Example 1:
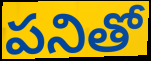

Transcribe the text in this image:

పనితో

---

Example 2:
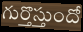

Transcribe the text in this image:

గుర్తొస్తుందో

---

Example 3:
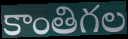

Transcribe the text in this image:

కాంతిగల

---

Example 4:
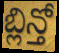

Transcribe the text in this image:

బ్లిన్తో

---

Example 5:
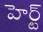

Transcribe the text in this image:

హెర్ట్